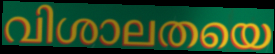
വിശാലതയെ